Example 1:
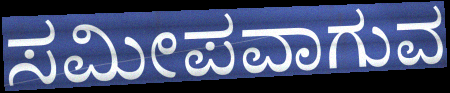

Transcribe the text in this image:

ಸಮೀಪವಾಗುವ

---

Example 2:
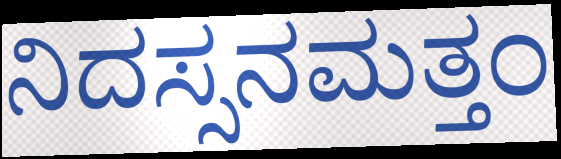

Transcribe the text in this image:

ನಿದಸ್ಸನಮತ್ತಂ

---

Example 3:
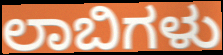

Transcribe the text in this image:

ಲಾಬಿಗಳು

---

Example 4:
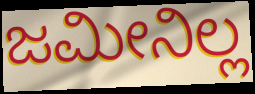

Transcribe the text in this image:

ಜಮೀನಿಲ್ಲ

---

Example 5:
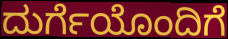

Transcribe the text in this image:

ದುರ್ಗೆಯೊಂದಿಗೆ